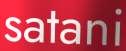
satani